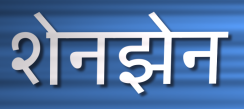
शेनझेन